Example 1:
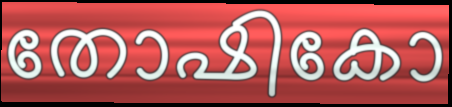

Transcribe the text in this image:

തോഷികോ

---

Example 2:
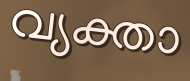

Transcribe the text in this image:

വ്യക്താ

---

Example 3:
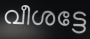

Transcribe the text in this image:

വീശട്ടേ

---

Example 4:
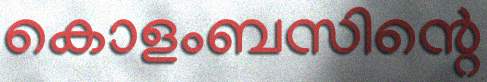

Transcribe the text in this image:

കൊളംബസിന്റെ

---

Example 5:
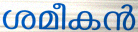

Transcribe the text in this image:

ശമീകൻ